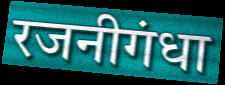
रजनीगंधा